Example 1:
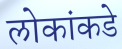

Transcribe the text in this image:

लोकांकडे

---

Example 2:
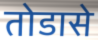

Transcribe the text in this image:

तोडासे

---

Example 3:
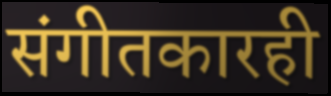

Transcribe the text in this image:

संगीतकारही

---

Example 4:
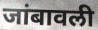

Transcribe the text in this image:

जांबावली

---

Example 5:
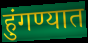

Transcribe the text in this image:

हुंगण्यात